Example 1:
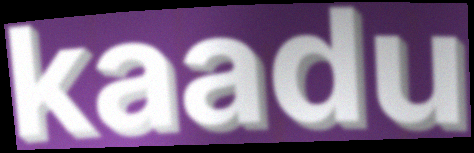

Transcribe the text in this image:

kaadu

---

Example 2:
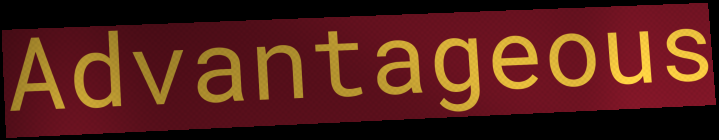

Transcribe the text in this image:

Advantageous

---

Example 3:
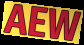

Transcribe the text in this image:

AEW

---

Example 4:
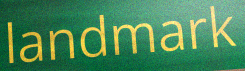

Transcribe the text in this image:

landmark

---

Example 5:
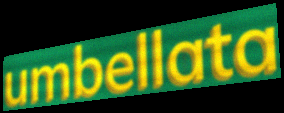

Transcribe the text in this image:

umbellata